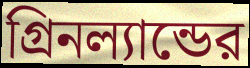
গ্রিনল্যান্ডের